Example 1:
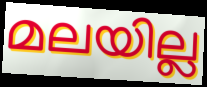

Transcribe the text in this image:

മലയില്ല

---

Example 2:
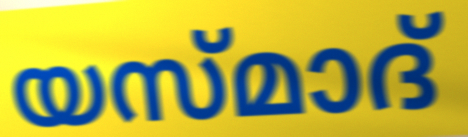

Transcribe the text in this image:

യസ്മാദ്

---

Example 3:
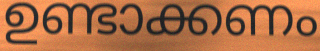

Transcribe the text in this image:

ഉണ്ടാക്കണം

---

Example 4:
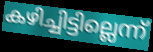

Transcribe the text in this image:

കഴിച്ചിട്ടില്ലെന്ന്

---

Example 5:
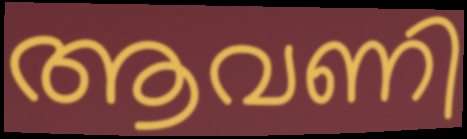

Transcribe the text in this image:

ആവണി